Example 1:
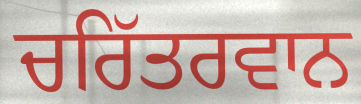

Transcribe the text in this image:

ਚਰਿੱਤਰਵਾਨ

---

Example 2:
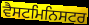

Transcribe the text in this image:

ਵੈਸਟਮਿਨਿਸਟਰ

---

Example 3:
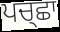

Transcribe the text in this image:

ਪਚ੍ਛਾ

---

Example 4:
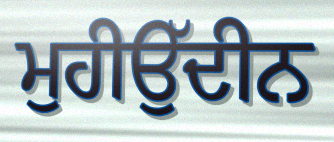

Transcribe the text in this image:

ਮੁਹੀਉੱਦੀਨ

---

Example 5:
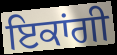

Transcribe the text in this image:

ਇਕਾਂਗੀ